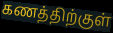
கணத்திற்குள்